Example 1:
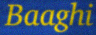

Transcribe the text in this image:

Baaghi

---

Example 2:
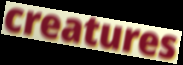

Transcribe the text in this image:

creatures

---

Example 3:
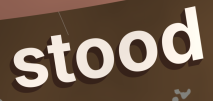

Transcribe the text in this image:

stood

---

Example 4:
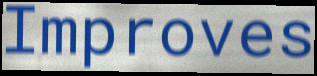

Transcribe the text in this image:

Improves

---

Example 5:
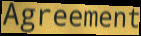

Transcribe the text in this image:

Agreement